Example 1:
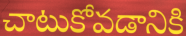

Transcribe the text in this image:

చాటుకోవడానికి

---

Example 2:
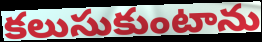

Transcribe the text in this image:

కలుసుకుంటాను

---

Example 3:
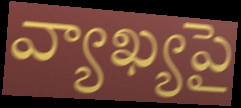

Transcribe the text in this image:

వ్యాఖ్యపై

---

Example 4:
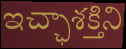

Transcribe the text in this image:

ఇచ్ఛాశక్తిని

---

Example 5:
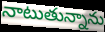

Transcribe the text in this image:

నాటుతున్నాను